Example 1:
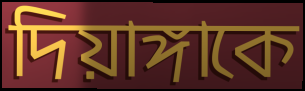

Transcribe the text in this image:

দিয়াঙ্গাকে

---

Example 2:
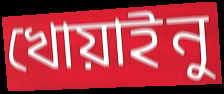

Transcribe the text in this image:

খোয়াইনু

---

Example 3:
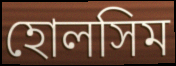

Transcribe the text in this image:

হোলসিম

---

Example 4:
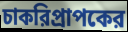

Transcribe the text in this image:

চাকরিপ্রাপকের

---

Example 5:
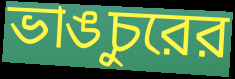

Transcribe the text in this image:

ভাঙচুরের